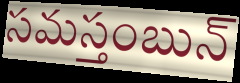
సమస్తంబున్